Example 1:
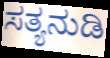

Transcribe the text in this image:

ಸತ್ಯನುಡಿ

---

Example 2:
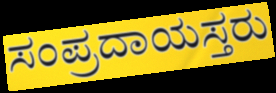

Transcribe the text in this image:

ಸಂಪ್ರದಾಯಸ್ತರು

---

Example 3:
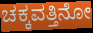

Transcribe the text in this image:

ಚಕ್ಕವತ್ತಿನೋ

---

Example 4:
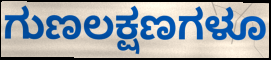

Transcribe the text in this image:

ಗುಣಲಕ್ಷಣಗಳೂ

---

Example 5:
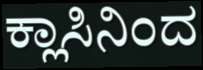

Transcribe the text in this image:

ಕ್ಲಾಸಿನಿಂದ